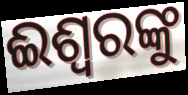
ଈଶ୍ଵରଙ୍କୁ